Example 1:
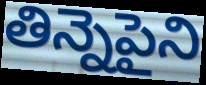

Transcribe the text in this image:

తిన్నెపైని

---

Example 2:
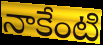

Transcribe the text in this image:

నాకేంటి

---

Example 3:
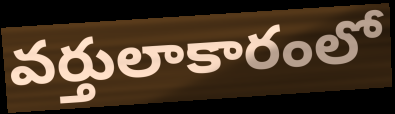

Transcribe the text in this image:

వర్తులాకారంలో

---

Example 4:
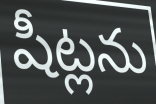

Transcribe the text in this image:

షీట్లను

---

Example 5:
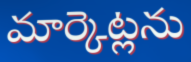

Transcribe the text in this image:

మార్కెట్లను